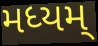
મધ્યમ્